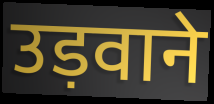
उड़वाने